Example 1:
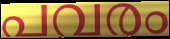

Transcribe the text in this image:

പവരം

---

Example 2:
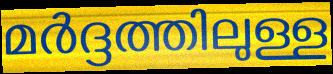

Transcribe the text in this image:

മർദ്ദത്തിലുള്ള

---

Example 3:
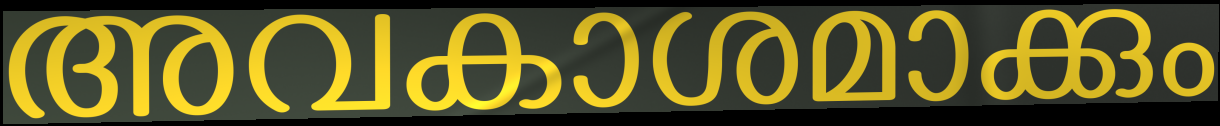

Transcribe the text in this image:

അവകാശമാക്കും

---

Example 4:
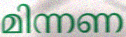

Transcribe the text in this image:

മിന്നണ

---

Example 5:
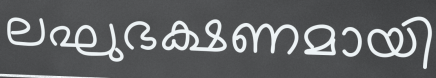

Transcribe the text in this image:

ലഘുഭക്ഷണമായി